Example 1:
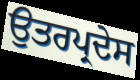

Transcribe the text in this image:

ਉਤਰਪ੍ਰਦੇਸ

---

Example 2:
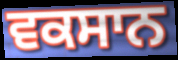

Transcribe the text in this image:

ਵਕਸਾਨ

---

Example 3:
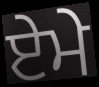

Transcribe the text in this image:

ਏਮੇ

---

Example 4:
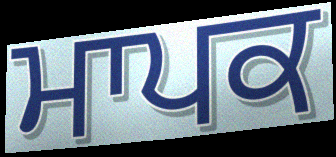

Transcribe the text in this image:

ਮਾਪਕ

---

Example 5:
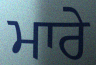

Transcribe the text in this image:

ਮਾਰੇ